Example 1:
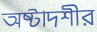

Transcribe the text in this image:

অষ্টাদশীর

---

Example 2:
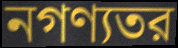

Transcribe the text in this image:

নগণ্যতর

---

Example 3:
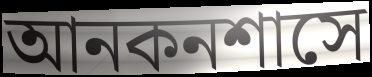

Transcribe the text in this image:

আনকনশাসে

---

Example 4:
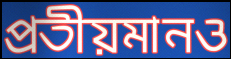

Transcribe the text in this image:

প্রতীয়মানও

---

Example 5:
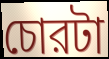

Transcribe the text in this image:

চোরটা